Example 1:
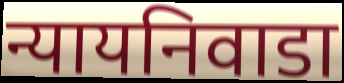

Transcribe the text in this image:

न्यायनिवाडा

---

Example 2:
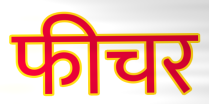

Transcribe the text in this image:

फीचर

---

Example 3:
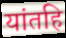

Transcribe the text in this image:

यांतहि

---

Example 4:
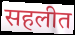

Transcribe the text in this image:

सहलीत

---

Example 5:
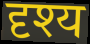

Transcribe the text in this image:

दृश्य